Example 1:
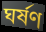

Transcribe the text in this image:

ঘৰ্ষণ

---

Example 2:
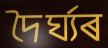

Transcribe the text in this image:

দৈৰ্ঘ্যৰ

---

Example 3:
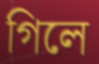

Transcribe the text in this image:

গিলে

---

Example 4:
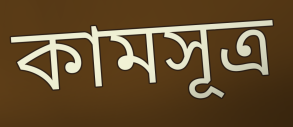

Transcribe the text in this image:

কামসূত্ৰ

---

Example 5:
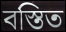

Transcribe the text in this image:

বস্তিত